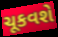
ચૂકવશે